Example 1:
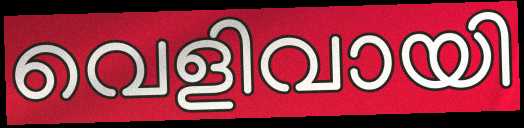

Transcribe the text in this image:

വെളിവായി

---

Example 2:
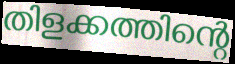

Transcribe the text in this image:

തിളക്കത്തിന്റെ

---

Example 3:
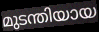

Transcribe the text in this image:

മുടന്തിയായ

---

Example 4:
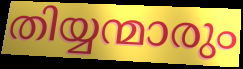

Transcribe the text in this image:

തിയ്യന്മാരും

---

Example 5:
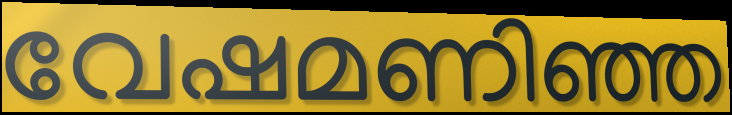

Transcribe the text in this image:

വേഷമണിഞ്ഞ